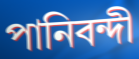
পানিবন্দী